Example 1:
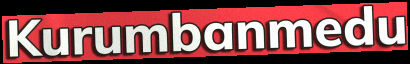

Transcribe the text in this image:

Kurumbanmedu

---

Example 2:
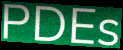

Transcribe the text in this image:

PDEs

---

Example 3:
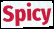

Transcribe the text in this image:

Spicy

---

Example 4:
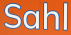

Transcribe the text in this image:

Sahl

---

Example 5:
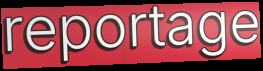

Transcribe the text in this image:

reportage